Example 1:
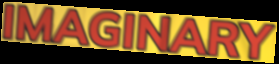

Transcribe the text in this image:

IMAGINARY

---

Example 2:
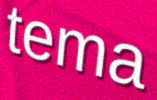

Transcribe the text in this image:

tema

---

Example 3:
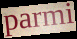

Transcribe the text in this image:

parmi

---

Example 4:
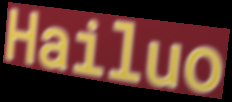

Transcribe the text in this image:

Hailuo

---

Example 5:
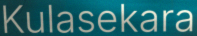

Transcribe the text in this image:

Kulasekara